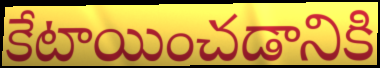
కేటాయించడానికి